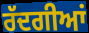
ਰੱਦਗੀਆਂ